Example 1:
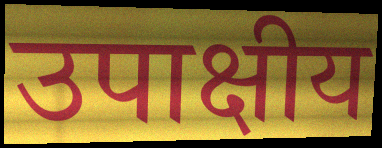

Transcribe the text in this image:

उपाक्षीय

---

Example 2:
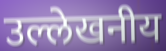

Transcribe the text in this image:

उल्लेखनीय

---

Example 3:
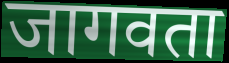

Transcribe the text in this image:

जागवता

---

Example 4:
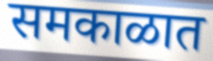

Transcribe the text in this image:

समकाळात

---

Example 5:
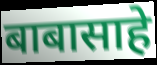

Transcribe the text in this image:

बाबासाहे